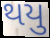
થયુ